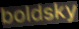
boldsky